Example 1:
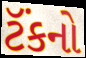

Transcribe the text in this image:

ટૅંકનો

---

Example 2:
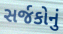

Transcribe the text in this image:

સર્જકોનું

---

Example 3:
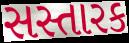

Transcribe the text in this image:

સસ્તારક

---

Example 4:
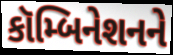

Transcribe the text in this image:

કૉમ્બિનેશનને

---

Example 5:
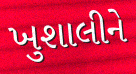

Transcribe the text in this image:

ખુશાલીને